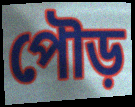
পৌড়